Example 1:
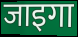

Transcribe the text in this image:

जाइगा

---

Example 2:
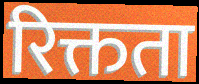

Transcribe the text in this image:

रिक्तता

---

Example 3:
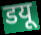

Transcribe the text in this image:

डयू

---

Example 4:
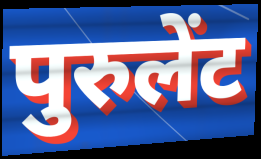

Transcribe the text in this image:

पुरुलेंट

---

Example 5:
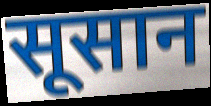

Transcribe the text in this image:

सूसान